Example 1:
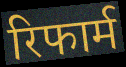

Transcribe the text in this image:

रिफार्म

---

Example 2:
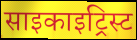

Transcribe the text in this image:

साइकाइट्रिस्ट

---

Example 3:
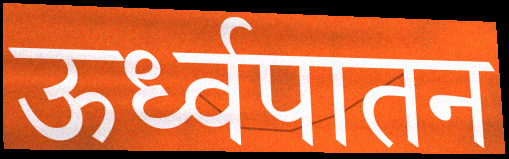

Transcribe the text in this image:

ऊर्ध्वपातन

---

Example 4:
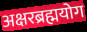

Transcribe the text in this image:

अक्षरब्रह्मयोग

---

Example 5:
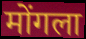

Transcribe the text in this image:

मोंगला